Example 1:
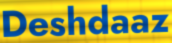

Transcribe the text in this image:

Deshdaaz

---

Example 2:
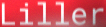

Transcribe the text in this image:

Liller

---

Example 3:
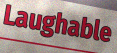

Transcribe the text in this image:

Laughable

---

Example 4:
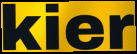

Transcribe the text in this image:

kier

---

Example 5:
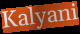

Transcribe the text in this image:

Kalyani